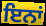
ਇਨਾਂ